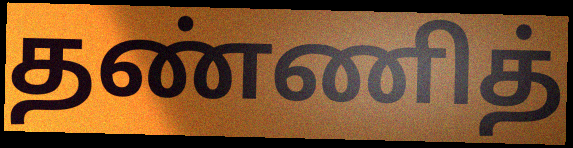
தண்ணித்